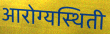
आरोग्यस्थिती